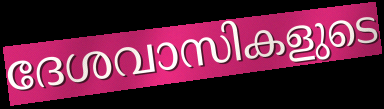
ദേശവാസികളുടെ